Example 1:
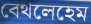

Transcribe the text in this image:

বেথলেহেম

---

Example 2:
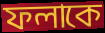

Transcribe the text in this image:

ফলাকে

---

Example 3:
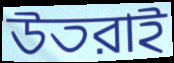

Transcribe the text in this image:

উতরাই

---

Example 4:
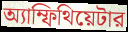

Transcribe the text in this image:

অ্যাম্ফিথিয়েটার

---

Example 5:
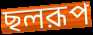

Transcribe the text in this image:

ছলরূপ